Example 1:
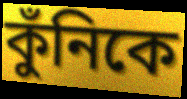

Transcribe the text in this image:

কুঁনিকে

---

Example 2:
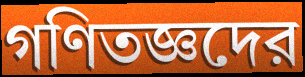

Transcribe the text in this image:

গণিতজ্ঞদের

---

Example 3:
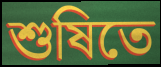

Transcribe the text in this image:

শুষিতে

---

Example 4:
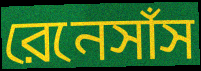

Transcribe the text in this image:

রেনেসাঁস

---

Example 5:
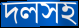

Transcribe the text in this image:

দলসহ